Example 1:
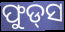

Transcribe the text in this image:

ଫୁଡ୍‌ସ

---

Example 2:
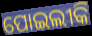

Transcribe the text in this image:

ପୋଇଲୀକି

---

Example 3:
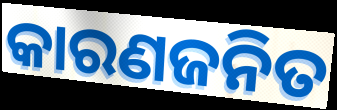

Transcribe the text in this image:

କାରଣଜନିତ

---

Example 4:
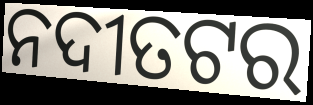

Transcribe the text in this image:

ନଦୀତଟର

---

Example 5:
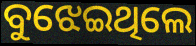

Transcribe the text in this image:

ବୁଝେଇଥିଲେ